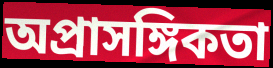
অপ্রাসঙ্গিকতা